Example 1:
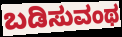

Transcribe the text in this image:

ಬಡಿಸುವಂಥ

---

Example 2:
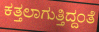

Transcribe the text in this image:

ಕತ್ತಲಾಗುತ್ತಿದ್ದಂತೆ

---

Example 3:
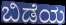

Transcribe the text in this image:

ಬಿಡೆಯ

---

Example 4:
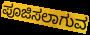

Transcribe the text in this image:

ಪೂಜಿಸಲಾಗುವ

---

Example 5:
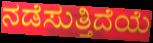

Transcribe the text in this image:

ನಡೆಸುತ್ತಿದೆಯೆ